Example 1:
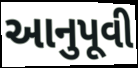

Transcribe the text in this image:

આનુપૂવી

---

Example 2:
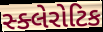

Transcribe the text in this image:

સ્ક્લેરોટિક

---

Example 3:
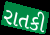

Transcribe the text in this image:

રાતકી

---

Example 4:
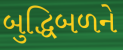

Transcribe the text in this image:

બુદ્ધિબળને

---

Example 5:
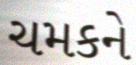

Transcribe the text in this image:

ચમકને